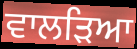
ਵਾਲੜਿਆ